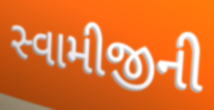
સ્વામીજીની